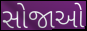
સોજાઓ